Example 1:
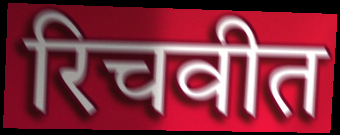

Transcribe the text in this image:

रिचवीत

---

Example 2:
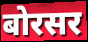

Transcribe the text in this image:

बोरसर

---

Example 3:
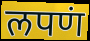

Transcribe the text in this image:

लपणं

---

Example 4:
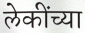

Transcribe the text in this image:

लेकींच्या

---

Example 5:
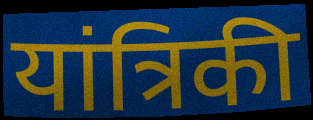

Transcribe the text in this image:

यांत्रिकी